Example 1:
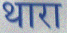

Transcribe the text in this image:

थारा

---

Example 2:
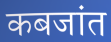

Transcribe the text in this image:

कबजांत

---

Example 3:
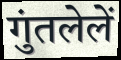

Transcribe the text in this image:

गुंतलेलें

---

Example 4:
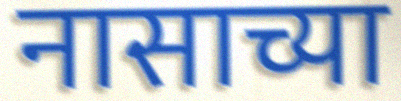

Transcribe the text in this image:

नासाच्या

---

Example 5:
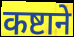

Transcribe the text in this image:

कष्टाने